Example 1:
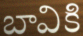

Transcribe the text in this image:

బావికి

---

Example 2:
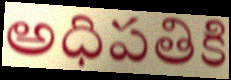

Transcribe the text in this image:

అధిపతికి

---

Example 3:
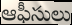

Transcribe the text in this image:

ఆఫీసులు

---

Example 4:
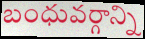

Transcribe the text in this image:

బంధువర్గాన్ని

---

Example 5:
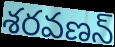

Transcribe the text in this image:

శరవణన్